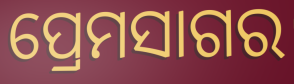
ପ୍ରେମସାଗର